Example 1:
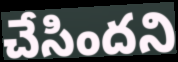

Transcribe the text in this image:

చేసిందని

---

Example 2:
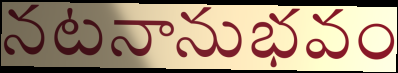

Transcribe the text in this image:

నటనానుభవం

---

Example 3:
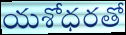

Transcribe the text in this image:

యశోధరతో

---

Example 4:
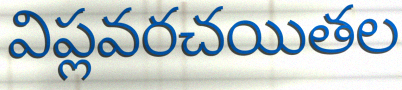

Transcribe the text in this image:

విప్లవరచయితల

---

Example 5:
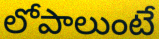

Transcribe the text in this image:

లోపాలుంటే